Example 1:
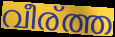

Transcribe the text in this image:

വീര്ത്ത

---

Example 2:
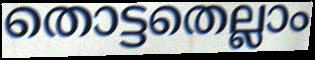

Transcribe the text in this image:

തൊട്ടതെല്ലാം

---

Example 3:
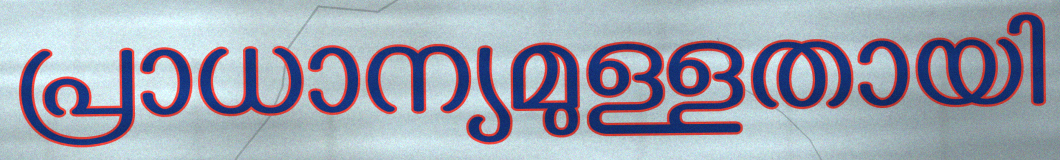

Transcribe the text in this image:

പ്രാധാന്യമുള്ളതായി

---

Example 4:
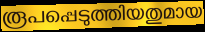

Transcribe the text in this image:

രൂപപ്പെടുത്തിയതുമായ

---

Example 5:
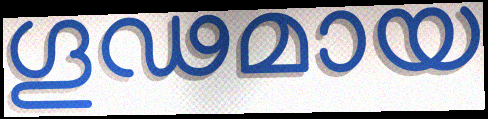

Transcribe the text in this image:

ഗൂഢമായ